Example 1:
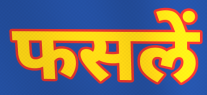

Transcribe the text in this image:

फसलें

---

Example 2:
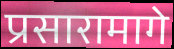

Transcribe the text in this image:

प्रसारामागे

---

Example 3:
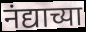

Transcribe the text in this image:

नंद्याच्या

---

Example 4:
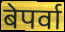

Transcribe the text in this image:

बेपर्वा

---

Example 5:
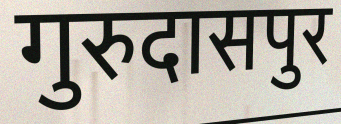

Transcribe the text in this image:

गुरुदासपुर